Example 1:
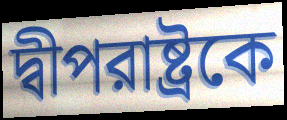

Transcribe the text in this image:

দ্বীপরাষ্ট্রকে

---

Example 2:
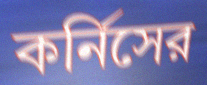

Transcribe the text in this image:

কর্নিসের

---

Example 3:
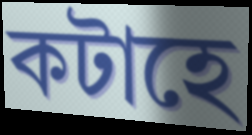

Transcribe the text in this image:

কটাহে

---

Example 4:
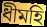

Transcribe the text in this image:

ধীমহি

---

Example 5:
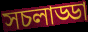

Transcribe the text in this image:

সচলাড্ডা